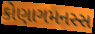
કોણાગમનસ્સ